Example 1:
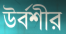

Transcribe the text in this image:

উর্বশীর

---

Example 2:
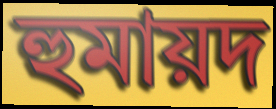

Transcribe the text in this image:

হুমায়দ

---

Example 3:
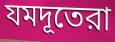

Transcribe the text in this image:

যমদূতেরা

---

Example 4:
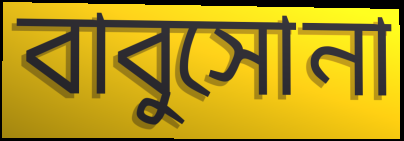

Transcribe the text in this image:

বাবুসোনা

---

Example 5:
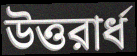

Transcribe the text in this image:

উত্তরার্ধ